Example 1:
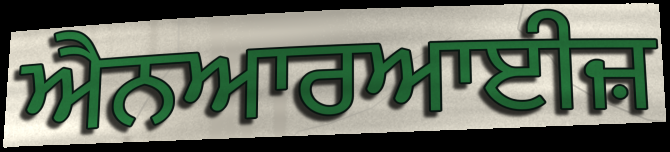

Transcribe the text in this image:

ਐਨਆਰਆਈਜ਼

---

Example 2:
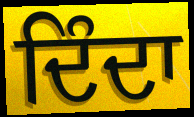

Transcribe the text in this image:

ਦਿੰਦਾ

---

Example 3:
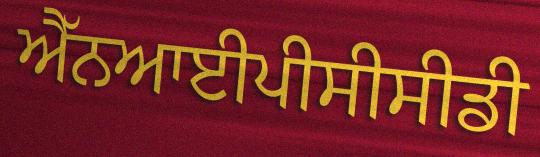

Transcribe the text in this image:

ਐੱਨਆਈਪੀਸੀਸੀਡੀ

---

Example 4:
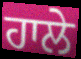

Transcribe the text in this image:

ਹਾਲੇ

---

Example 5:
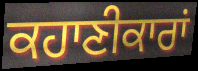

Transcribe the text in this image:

ਕਹਾਣੀਕਾਰਾਂ